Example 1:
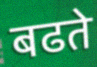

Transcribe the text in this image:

बढते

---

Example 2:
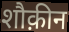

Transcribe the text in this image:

शौक़ीन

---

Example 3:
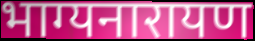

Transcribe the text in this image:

भाग्यनारायण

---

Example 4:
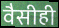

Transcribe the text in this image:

वैसीही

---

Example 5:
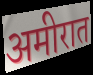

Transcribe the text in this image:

अमीरात